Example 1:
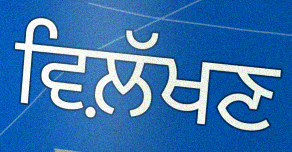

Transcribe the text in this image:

ਵਿਲ਼ੱਖਣ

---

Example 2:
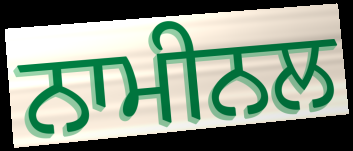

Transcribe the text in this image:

ਨਾਮੀਨਲ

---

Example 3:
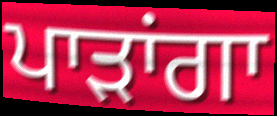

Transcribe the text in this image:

ਪਾੜਾਂਗਾ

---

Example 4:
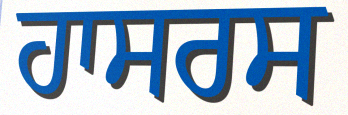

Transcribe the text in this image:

ਹਾਸਰਸ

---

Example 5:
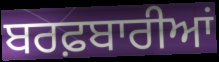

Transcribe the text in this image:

ਬਰਫ਼ਬਾਰੀਆਂ